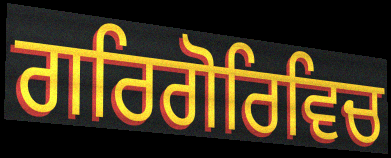
ਗਰਿਗੋਰਿਵਿਚ